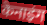
केनाइंग